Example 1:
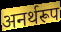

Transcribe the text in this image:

अनर्थरूप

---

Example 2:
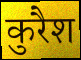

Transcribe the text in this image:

कुरैश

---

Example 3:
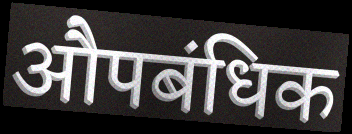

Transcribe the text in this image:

औपबंधिक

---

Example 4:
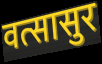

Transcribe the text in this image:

वत्सासुर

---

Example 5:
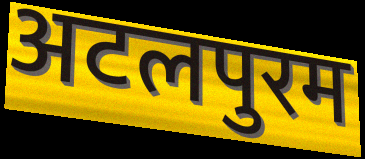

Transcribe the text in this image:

अटलपुरम